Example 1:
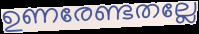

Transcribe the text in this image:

ഉണരേണ്ടതല്ലേ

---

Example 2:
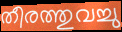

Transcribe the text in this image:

തീരത്തുവച്ചു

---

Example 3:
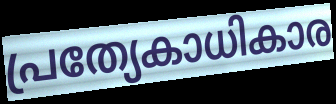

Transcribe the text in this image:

പ്രത്യേകാധികാര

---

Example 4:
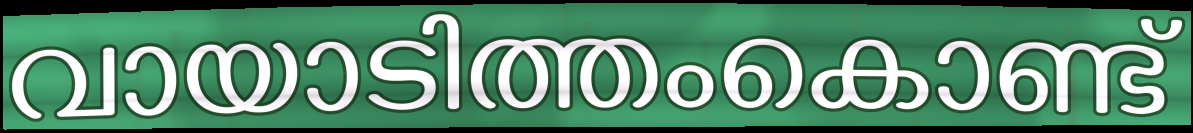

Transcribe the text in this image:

വായാടിത്തംകൊണ്ട്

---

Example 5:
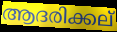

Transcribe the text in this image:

ആദരിക്കല്